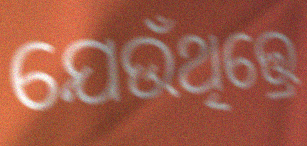
ଯେଉଁଥିତ୍ତ୍ରେ